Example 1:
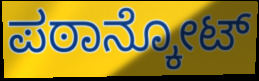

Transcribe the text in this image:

ಪಠಾನ್ಕೋಟ್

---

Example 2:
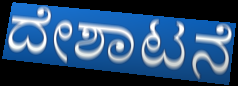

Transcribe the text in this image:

ದೇಶಾಟನೆ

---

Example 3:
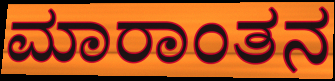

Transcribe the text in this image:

ಮಾರಾಂತನ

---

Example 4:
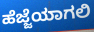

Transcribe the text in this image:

ಹೆಜ್ಜೆಯಾಗಲಿ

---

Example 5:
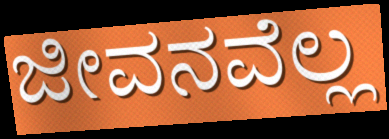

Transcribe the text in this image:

ಜೀವನವೆಲ್ಲ